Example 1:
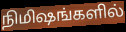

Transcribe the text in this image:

நிமிஷங்களில்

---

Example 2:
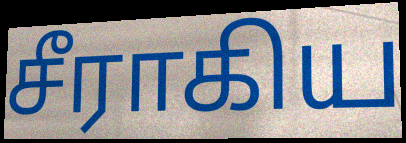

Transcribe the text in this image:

சீராகிய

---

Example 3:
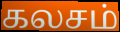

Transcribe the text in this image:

கலசம்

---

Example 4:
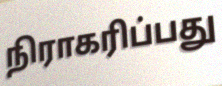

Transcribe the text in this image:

நிராகரிப்பது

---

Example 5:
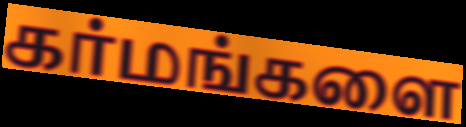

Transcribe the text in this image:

கர்மங்களை